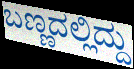
ಬಣ್ಣದಲ್ಲಿದ್ದು